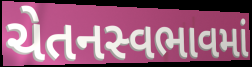
ચેતનસ્વભાવમાં